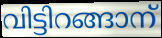
വിട്ടിറങ്ങാന്